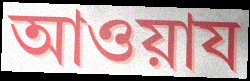
আওয়ায